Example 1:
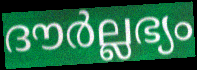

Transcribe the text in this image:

ദൗർല്ലഭ്യം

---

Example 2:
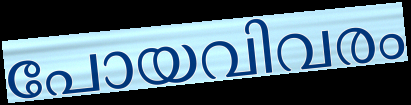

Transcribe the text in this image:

പോയവിവരം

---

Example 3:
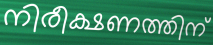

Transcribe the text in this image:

നിരീക്ഷണത്തിന്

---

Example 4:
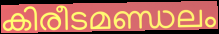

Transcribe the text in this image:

കിരീടമണ്ഡലം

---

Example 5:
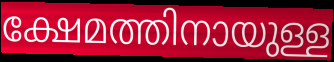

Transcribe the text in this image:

ക്ഷേമത്തിനായുള്ള